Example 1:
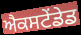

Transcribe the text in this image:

ਐਕਸਟੇਂਡੇਡ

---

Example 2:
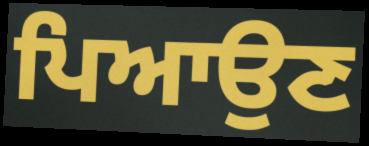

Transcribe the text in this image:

ਪਿਆਉਣ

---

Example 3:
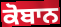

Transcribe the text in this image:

ਕੋਬਾਨ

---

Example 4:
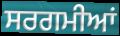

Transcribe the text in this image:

ਸਰਗਮੀਆਂ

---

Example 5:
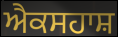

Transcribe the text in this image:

ਐਕਸਹਾਸ਼